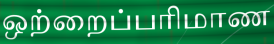
ஒற்றைப்பரிமாண